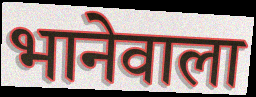
भानेवाला